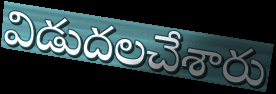
విడుదలచేశారు